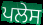
ਪਲੇਸ